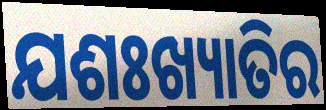
ଯଶଃଖ୍ୟାତିର